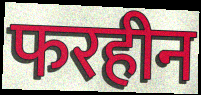
फरहीन